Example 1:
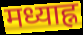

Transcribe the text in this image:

मध्याह्न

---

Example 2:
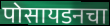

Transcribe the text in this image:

पोसायडनचा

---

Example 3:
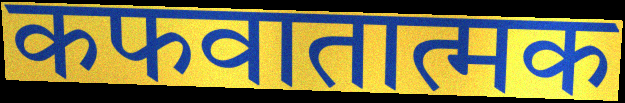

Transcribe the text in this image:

कफवातात्मक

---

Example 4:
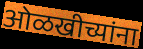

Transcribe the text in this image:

ओळखीच्यांना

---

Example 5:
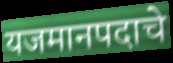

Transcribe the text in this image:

यजमानपदाचे